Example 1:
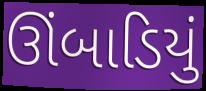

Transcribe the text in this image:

ઊંબાડિયું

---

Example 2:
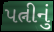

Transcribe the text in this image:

પત્નીનું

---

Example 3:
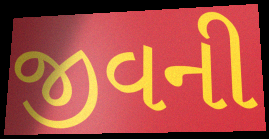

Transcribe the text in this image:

જીવની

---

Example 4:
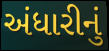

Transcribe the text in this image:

અંધારીનું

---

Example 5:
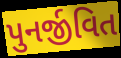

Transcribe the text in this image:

પુનર્જીવિત